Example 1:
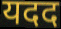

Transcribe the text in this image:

यदद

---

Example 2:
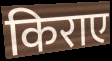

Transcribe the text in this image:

किराए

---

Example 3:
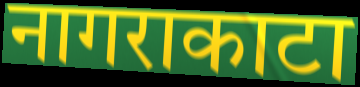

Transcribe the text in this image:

नागराकाटा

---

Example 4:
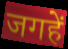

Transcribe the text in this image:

जगहें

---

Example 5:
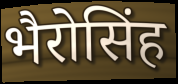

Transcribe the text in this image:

भैरोसिंह